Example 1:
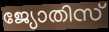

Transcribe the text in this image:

ജ്യോതിസ്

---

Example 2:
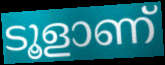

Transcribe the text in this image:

ടൂളാണ്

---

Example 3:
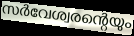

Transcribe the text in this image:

സർവേശ്വരന്റെയും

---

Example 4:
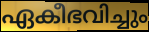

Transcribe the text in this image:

ഏകീഭവിച്ചും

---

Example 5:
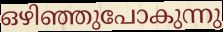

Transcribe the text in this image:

ഒഴിഞ്ഞുപോകുന്നു